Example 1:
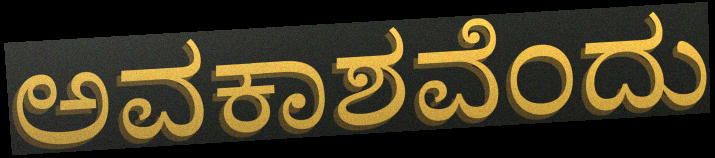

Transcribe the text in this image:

ಅವಕಾಶವೆಂದು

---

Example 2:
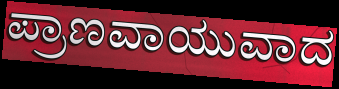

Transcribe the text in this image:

ಪ್ರಾಣವಾಯುವಾದ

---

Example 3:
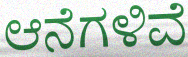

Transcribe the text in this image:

ಆನೆಗಳಿವೆ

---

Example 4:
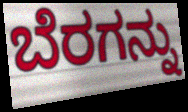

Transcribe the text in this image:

ಬೆರಗನ್ನು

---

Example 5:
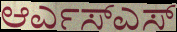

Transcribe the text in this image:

ಆರ್ಎಸ್ಎಸ್